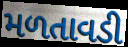
મળતાવડી